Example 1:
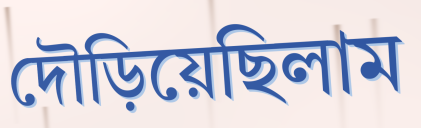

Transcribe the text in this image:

দৌড়িয়েছিলাম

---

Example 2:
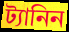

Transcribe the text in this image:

ট্যানিন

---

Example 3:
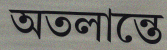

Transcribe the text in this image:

অতলান্তে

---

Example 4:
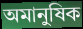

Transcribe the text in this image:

অমানুষিক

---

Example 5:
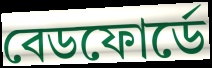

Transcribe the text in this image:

বেডফোর্ডে